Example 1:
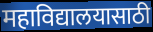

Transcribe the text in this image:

महाविद्यालयासाठी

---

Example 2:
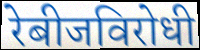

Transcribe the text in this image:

रेबीजविरोधी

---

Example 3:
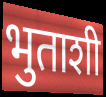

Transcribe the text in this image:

भुताशी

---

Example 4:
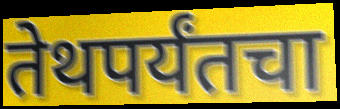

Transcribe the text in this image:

तेथपर्यंतचा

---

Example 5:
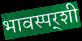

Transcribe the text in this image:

भावस्पर्शी